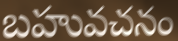
బహువచనం